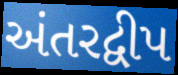
અંતરદ્વીપ